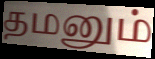
தமனும்